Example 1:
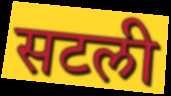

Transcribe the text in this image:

सटली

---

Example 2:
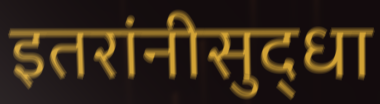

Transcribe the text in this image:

इतरांनीसुद्धा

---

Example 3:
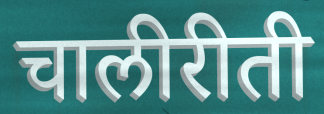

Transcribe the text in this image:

चालीरीती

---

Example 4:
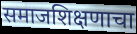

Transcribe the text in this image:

समाजशिक्षणाचा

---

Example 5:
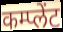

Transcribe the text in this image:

कम्प्लेंट